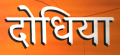
दोधिया